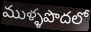
ముళ్ళపొదలో